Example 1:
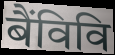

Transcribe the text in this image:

बैंविवि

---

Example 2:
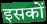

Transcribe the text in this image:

इसकों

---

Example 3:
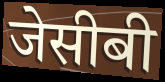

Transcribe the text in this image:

जेसीबी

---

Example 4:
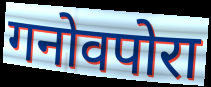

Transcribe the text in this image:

गनोवपोरा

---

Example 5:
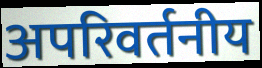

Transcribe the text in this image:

अपरिवर्तनीय